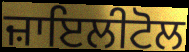
ਜ਼ਾਇਲੀਟੋਲ